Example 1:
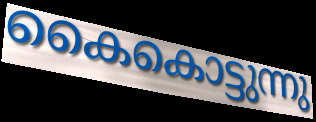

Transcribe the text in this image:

കൈകൊട്ടുന്നു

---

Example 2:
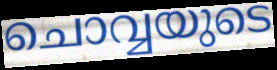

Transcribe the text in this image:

ചൊവ്വയുടെ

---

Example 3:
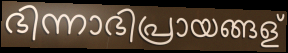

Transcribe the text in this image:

ഭിന്നാഭിപ്രായങ്ങള്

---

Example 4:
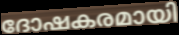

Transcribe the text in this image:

ദോഷകരമായി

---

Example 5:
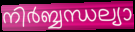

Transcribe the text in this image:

നിർബ്ബന്ധല്യാ